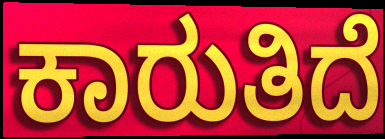
ಕಾರುತಿದೆ